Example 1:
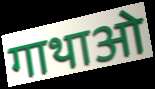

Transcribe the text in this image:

गाथाओ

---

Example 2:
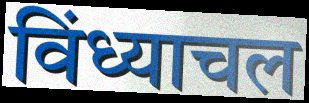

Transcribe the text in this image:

विंध्याचल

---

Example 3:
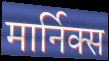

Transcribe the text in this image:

मार्निक्स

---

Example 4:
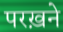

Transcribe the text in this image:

परख़ने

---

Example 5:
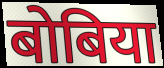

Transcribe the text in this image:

बोबिया